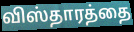
விஸ்தாரத்தை